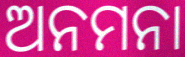
ଅନମନା